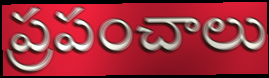
ప్రపంచాలు